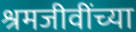
श्रमजीवींच्या